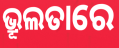
ଭ୍ରୂଲତାରେ